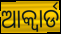
ଆକ୍ୱାର୍ଡ